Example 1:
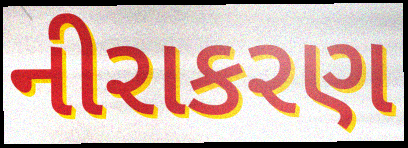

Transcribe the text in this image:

નીરાકરણ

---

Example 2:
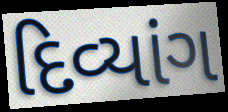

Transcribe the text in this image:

દિવ્યાંગ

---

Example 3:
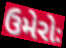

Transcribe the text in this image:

ઉમેરોઃ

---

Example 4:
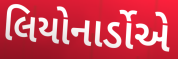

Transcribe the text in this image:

લિયોનાર્ડોએ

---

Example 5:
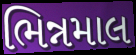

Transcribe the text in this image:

ભિન્નમાલ